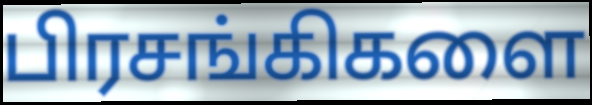
பிரசங்கிகளை